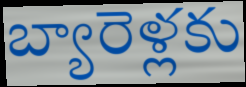
బ్యారెళ్లకు